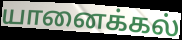
யானைக்கல்